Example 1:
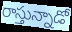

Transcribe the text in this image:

రాస్తున్నాడో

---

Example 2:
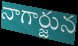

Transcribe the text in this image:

నాగార్జున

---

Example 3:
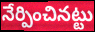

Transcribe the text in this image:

నేర్పించినట్టు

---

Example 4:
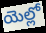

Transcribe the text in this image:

యెల్లో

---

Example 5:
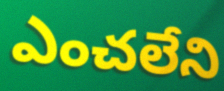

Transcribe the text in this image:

ఎంచలేని